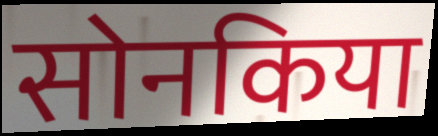
सोनकिया